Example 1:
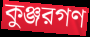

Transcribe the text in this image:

কুঞ্জরগণ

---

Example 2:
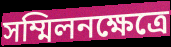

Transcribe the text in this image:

সম্মিলনক্ষেত্রে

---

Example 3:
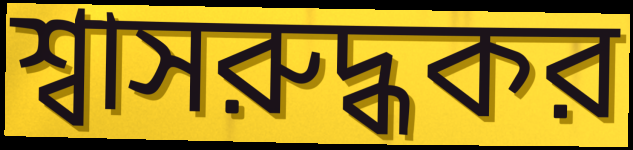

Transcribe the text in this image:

শ্বাসরুদ্ধকর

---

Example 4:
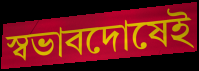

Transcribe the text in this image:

স্বভাবদোষেই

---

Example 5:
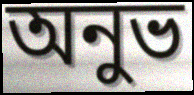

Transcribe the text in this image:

অনুভ